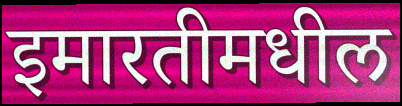
इमारतीमधील